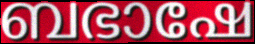
ബഭാഷേ